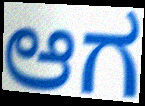
ಆಗ